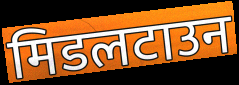
मिडलटाउन